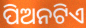
ପିଅନଟିଏ